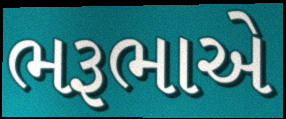
ભરૂભાએ